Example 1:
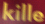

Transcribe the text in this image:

kille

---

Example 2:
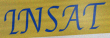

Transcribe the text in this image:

INSAT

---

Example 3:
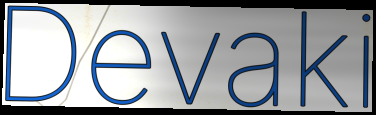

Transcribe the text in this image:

Devaki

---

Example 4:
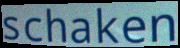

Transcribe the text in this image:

schaken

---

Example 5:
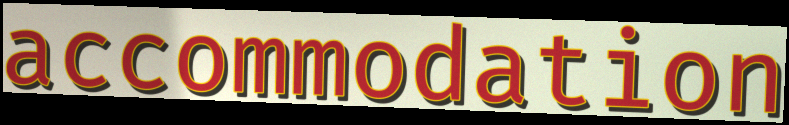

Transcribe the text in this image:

accommodation